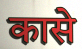
कासे